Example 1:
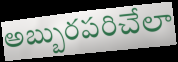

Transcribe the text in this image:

అబ్బురపరిచేలా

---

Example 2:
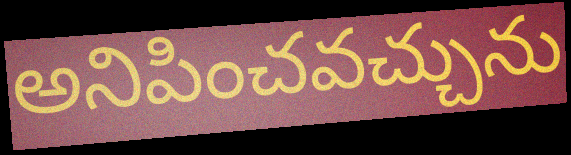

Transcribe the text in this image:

అనిపించవచ్చును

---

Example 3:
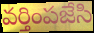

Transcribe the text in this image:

వర్తింపజేసి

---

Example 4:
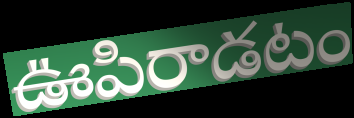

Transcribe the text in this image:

ఊపిరాడటం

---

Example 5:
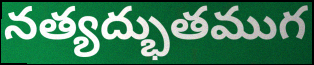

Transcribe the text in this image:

నత్యద్భుతముగ